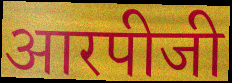
आरपीजी